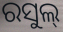
ରସୁଲ୍